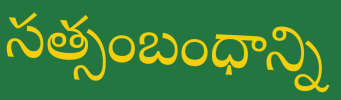
సత్సంబంధాన్ని